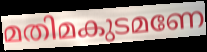
മതിമകുടമണേ